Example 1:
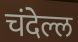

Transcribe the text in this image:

चंदेल्ल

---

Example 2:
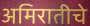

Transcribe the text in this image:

अमिरातीचे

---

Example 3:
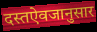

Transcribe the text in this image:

दस्तऐवजानुसार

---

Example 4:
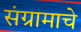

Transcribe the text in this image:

संग्रामाचे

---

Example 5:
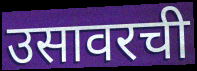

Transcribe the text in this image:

उसावरची